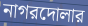
নাগরদোলার